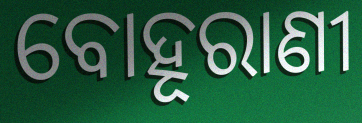
ବୋହୂରାଣୀ